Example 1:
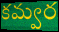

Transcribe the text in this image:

కమ్వర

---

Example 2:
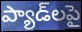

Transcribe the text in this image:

ప్యాడ్‌లపై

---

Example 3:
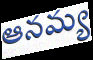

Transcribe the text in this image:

ఆనమ్య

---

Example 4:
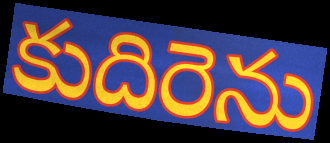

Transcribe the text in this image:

కుదిరెను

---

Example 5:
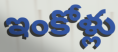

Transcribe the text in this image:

ఇంకోళ్లు